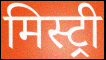
मिस्ट्री